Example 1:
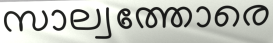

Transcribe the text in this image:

സാല്വത്തോരെ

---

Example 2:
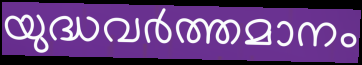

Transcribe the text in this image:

യുദ്ധവർത്തമാനം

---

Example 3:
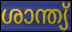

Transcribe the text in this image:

ശാന്ത്യ്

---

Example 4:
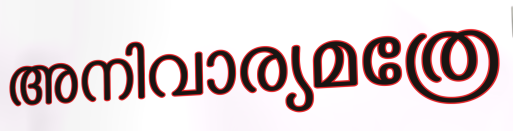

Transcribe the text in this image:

അനിവാര്യമത്രേ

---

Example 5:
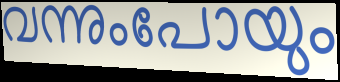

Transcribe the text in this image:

വന്നുംപോയും